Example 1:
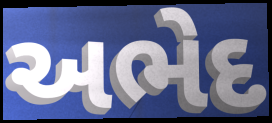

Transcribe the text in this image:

અભેદ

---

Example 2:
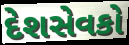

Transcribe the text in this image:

દેશસેવકો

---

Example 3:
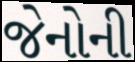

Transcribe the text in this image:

જેનોની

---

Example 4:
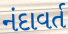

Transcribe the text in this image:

નંદાવર્ત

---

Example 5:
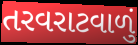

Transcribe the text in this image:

તરવરાટવાળું